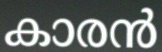
കാരൻ